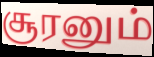
சூரனும்